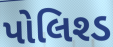
પોલિશ્ડ